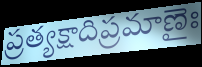
ప్రత్యక్షాదిప్రమాణైః